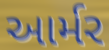
આર્મર